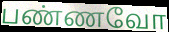
பண்ணவோ